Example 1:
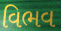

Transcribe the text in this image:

વિભવ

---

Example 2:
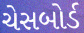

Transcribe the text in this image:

ચેસબોર્ડ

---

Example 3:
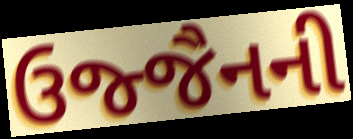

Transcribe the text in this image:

ઉજ્જૈનની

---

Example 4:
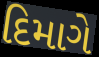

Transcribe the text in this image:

દિમાગે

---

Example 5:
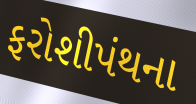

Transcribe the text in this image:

ફરોશીપંથના